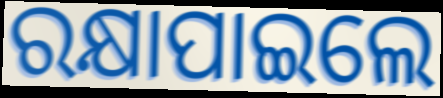
ରକ୍ଷାପାଇଲେ